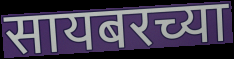
सायबरच्या